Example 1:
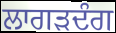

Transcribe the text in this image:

ਲਾਗੜਦੰਗ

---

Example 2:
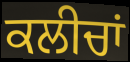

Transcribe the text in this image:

ਕਲੀਚਾਂ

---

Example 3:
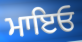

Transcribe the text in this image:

ਮਾਇਓ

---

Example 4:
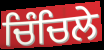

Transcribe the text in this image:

ਚਿੰਚਿਲੇ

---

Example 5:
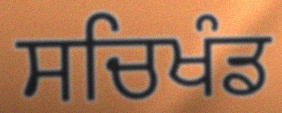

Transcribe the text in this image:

ਸਚਿਖੰਡ